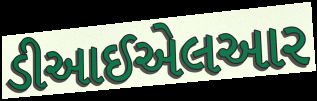
ડીઆઈએલઆર